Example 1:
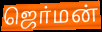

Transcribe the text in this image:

ஜெர்மன்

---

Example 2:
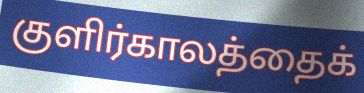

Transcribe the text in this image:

குளிர்காலத்தைக்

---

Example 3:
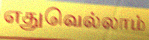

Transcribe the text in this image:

எதுவெல்லாம்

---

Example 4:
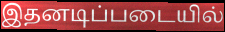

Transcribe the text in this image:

இதனடிப்படையில்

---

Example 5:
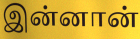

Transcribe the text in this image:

இன்னான்